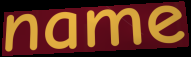
name